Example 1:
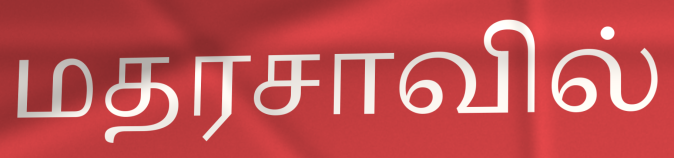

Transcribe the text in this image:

மதரசாவில்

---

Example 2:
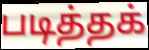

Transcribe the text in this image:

படித்தக்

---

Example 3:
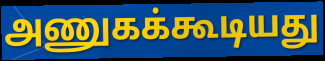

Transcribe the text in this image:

அணுகக்கூடியது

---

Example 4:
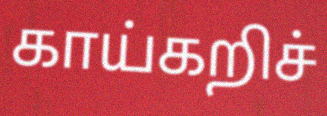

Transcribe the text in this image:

காய்கறிச்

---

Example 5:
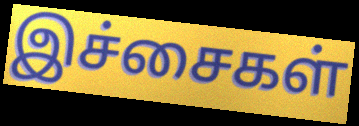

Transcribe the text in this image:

இச்சைகள்